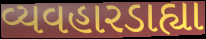
વ્યવહારડાહ્યા